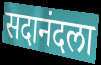
सदानंदला